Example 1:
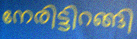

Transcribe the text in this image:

നേരിട്ടിറങ്ങി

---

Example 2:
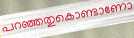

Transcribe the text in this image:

പറഞ്ഞതുകൊണ്ടാണോ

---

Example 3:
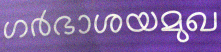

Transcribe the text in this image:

ഗർഭാശയമുഖ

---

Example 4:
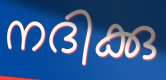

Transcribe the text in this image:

നദിക്കു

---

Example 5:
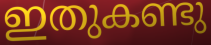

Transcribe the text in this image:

ഇതുകണ്ടു